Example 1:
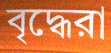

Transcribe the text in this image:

বৃদ্ধেরা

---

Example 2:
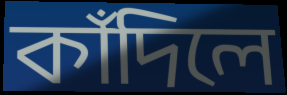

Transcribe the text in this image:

কাঁদিলে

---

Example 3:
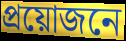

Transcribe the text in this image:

প্রয়োজনে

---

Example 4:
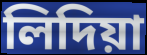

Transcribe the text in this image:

লিদিয়া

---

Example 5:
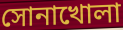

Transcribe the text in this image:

সোনাখোলা